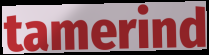
tamerind